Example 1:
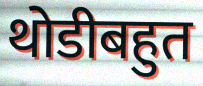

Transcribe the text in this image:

थोडीबहुत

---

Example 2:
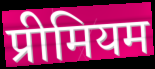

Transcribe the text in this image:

प्रीमियम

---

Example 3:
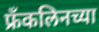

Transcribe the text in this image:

फ्रँकलिनच्या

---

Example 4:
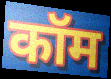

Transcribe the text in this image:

कॉम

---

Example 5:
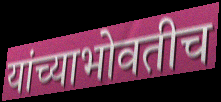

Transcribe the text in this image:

यांच्याभोवतीच